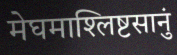
मेघमाश्लिष्टसानुं